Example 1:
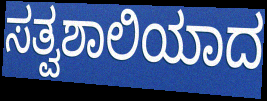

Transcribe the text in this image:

ಸತ್ವಶಾಲಿಯಾದ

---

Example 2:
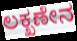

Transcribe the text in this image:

ಲಕ್ಖಣೇನ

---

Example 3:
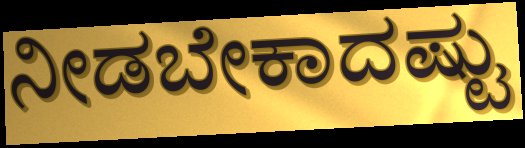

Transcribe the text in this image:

ನೀಡಬೇಕಾದಷ್ಟು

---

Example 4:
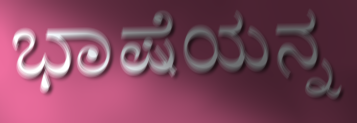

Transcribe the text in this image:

ಭಾಷೆಯನ್ನ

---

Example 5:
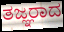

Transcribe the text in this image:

ತಜ್ಞರಾದ